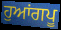
ਹੁਆਂਗਪੂ